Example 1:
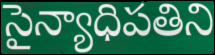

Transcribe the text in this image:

సైన్యాధిపతిని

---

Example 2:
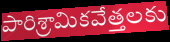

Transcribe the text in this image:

పారిశ్రామికవేత్తలకు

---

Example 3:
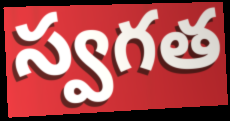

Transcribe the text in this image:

స్వగత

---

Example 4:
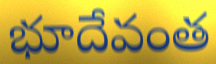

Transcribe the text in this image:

భూదేవంత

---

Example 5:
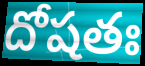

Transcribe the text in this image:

దోషతః